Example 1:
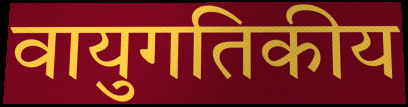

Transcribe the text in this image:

वायुगतिकीय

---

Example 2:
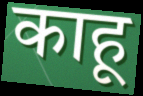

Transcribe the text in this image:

काहू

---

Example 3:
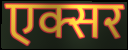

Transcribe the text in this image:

एक्सर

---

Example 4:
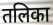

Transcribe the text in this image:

तलिका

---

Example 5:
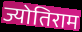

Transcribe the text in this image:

ज्योतिराम